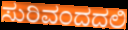
ಸುರಿವಂದದಲಿ